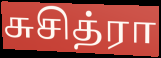
சுசித்ரா